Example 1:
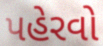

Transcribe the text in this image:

પહેરવો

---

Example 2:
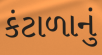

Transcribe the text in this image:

કંટાળાનું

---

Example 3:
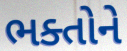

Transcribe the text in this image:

ભક્તોને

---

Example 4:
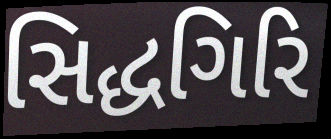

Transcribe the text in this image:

સિદ્ધગિરિ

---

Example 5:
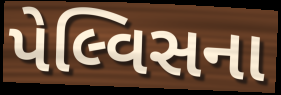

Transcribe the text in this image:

પેલ્વિસના